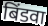
बिंडवा